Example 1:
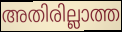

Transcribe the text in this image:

അതിരില്ലാത്ത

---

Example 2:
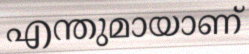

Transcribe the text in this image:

എന്തുമായാണ്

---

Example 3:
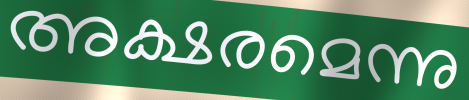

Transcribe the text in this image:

അക്ഷരമെന്നു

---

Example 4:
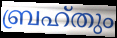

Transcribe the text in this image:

ബ്രഹ്തും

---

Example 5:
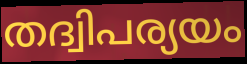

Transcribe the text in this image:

തദ്വിപര്യയം